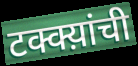
टक्क्य़ांची